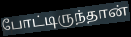
போட்டிருந்தான்